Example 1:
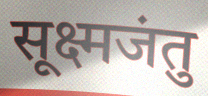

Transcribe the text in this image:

सूक्ष्मजंतु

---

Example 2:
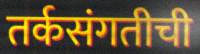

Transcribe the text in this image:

तर्कसंगतीची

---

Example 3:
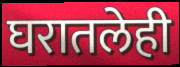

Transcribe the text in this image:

घरातलेही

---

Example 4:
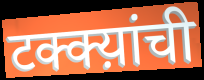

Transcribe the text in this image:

टक्क्य़ांची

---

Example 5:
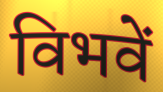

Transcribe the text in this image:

विभवें